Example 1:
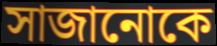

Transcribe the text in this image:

সাজানোকে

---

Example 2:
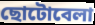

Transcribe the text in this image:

ছোটোবেলা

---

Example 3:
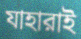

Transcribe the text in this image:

যাহারাই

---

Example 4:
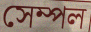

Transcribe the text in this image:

সেম্পল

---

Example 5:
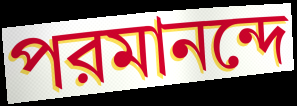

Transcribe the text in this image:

পরমানন্দে